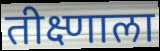
तीक्ष्णाला